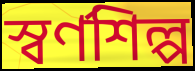
স্বর্ণশিল্প